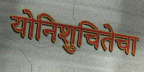
योनिशुचितेचा